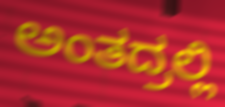
ಅಂತದ್ರಲ್ಲಿ